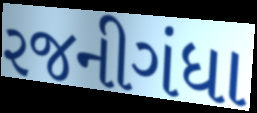
રજનીગંધા